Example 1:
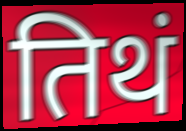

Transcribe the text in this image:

तिथं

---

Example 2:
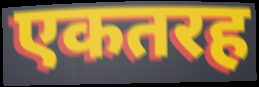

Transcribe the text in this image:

एकतरह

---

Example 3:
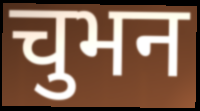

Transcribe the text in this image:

चुभन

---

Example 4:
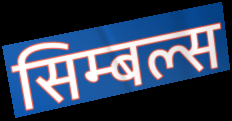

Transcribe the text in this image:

सिम्बल्स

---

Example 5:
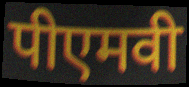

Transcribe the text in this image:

पीएमवी